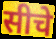
सीचे